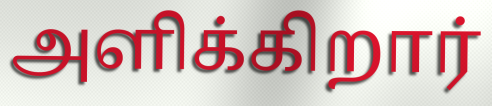
அளிக்கிறார்